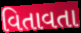
વિતાવતા